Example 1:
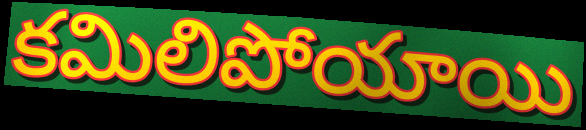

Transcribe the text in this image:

కమిలిపోయాయి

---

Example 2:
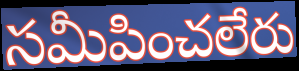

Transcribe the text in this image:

సమీపించలేరు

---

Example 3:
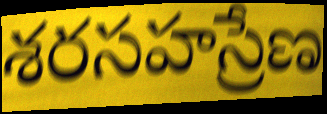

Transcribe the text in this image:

శరసహస్రేణ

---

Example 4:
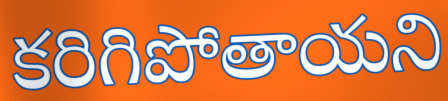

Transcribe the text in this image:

కరిగిపోతాయని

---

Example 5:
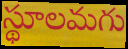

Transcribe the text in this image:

స్థూలమగు